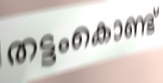
തട്ടംകൊണ്ട്